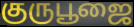
குருபூஜை